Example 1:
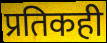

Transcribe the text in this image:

प्रतिकही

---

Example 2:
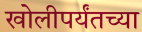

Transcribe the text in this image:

खोलीपर्यंतच्या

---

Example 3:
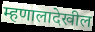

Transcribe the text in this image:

म्हणालादेखील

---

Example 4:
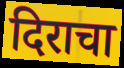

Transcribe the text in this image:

दिराचा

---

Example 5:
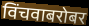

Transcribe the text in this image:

विंचवाबरोबर